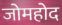
जोमहोद